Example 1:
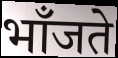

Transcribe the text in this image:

भाँजते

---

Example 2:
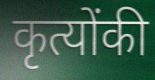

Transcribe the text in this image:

कृत्योंकी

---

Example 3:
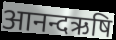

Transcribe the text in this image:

आनन्दऋषि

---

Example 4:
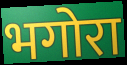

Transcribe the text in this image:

भगोरा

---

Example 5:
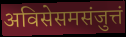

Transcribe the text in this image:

अविसेसमसंजुत्तं